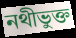
নথীভুক্ত